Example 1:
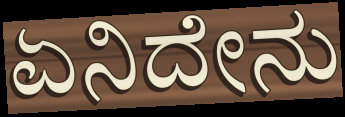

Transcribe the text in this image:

ಏನಿದೇನು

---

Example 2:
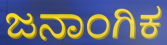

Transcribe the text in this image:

ಜನಾಂಗಿಕ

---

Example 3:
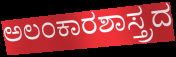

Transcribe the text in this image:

ಅಲಂಕಾರಶಾಸ್ತ್ರದ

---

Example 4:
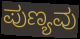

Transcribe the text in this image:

ಪುಣ್ಯವು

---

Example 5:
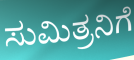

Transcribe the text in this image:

ಸುಮಿತ್ರನಿಗೆ